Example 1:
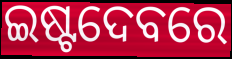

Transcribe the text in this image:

ଇଷ୍ଟଦେବରେ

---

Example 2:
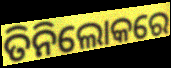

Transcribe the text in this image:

ତିନିଲୋକରେ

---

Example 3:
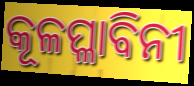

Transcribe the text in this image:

କୂଳପ୍ଳାବିନୀ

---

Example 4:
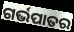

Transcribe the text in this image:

ଗର୍ଭପାତର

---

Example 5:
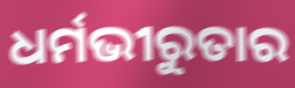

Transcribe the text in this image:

ଧର୍ମଭୀରୁତାର